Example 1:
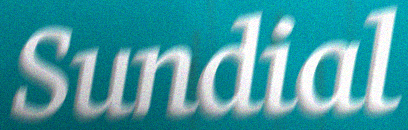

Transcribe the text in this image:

Sundial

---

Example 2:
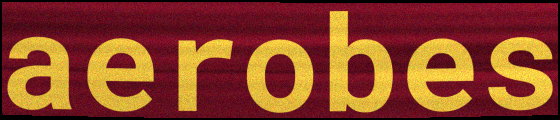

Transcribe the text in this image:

aerobes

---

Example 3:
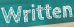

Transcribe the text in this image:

Written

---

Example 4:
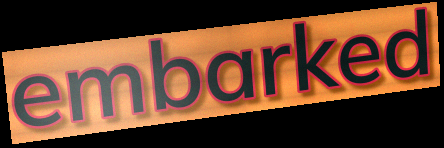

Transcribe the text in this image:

embarked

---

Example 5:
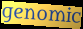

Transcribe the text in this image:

genomic